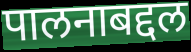
पालनाबद्दल